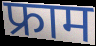
फ्राम